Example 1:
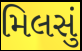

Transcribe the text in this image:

મિલસું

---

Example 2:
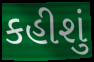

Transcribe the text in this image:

કહીશું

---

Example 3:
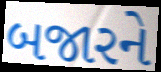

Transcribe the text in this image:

બજારને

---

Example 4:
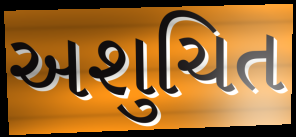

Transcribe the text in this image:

અશુચિત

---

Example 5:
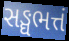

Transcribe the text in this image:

સઙ્ઘભત્તં